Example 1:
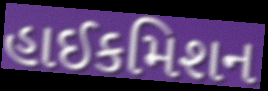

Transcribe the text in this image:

હાઈકમિશન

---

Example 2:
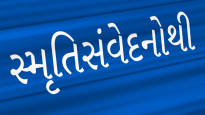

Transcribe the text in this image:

સ્મૃતિસંવેદનોથી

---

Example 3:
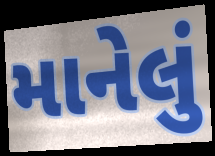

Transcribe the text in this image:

માનેલું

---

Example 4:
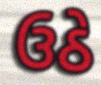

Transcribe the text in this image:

ઉઠે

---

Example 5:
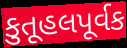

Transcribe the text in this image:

કુતૂહલપૂર્વક